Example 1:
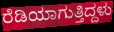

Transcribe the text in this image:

ರೆಡಿಯಾಗುತ್ತಿದ್ದಳು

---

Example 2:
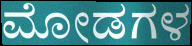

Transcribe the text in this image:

ಮೋಡಗಳ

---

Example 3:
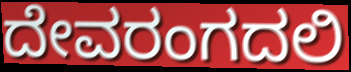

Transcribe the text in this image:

ದೇವರಂಗದಲಿ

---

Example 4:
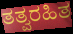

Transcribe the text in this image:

ತತ್ವರಹಿತ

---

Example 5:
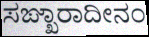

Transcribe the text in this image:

ಸಙ್ಖಾರಾದೀನಂ